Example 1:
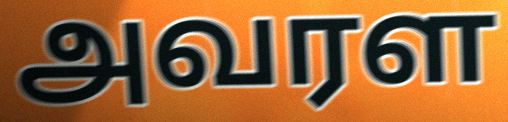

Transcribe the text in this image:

அவரள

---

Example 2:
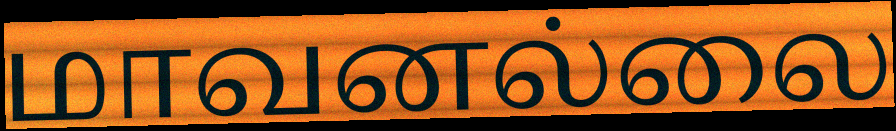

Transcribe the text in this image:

மாவனல்லை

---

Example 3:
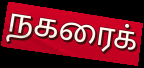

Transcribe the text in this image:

நகரைக்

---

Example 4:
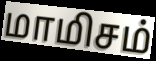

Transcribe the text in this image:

மாமிசம்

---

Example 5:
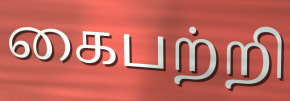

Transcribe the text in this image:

கைபற்றி